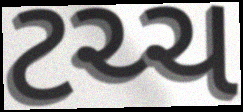
ટચ્ચ